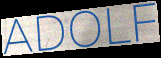
ADOLF